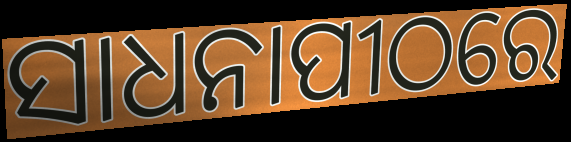
ସାଧନାପୀଠରେ